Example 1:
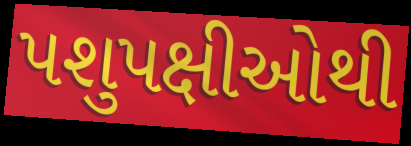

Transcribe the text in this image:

પશુપક્ષીઓથી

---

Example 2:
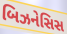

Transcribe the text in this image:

બિઝનેસિસ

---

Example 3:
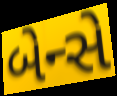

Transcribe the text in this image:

બેન્સે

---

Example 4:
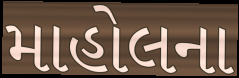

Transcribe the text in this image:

માહોલના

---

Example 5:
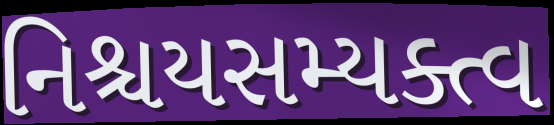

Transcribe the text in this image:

નિશ્ચયસમ્યક્ત્વ